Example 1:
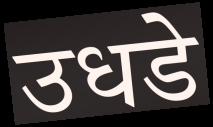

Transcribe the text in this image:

उधडे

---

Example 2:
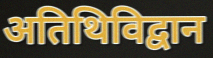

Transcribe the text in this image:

अतिथिविद्वान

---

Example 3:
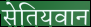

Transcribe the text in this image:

सेतियवान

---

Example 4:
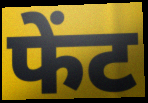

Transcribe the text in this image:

फेंट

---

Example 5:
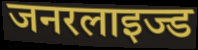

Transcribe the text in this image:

जनरलाइज्ड